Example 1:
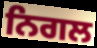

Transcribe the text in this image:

ਨਿਗਲ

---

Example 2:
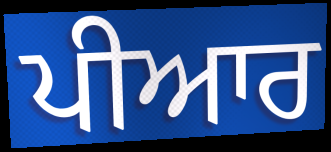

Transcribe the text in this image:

ਪੀਆਰ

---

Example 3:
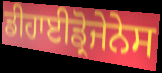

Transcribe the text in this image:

ਡੀਹਾਈਡ੍ਰੋਜੇਨੇਸ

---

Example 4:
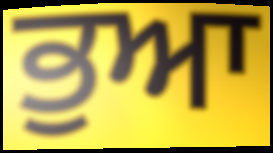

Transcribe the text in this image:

ਭੁਆ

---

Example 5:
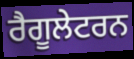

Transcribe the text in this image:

ਰੈਗੂਲੇਟਰਨ